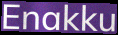
Enakku